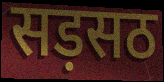
सड़सठ